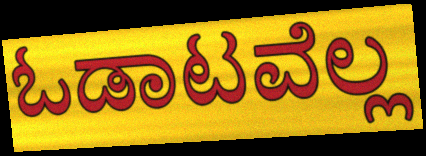
ಓಡಾಟವೆಲ್ಲ